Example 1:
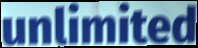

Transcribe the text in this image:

unlimited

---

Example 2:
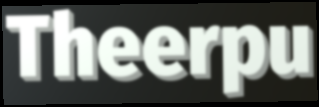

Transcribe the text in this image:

Theerpu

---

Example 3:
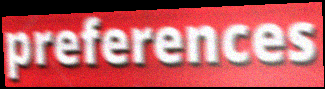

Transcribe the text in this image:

preferences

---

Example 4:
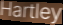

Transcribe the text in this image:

Hartley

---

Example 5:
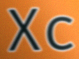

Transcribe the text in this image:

Xc